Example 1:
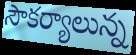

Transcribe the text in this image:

సౌకర్యాలున్న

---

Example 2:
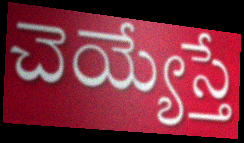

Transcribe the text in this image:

చెయ్యేస్తే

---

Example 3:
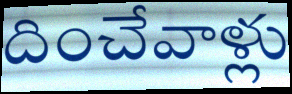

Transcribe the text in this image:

దించేవాళ్లు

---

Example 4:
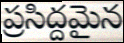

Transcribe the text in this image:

ప్రసిద్దమైన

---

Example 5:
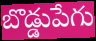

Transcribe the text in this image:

బొడ్డుపేగు